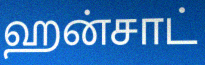
ஹன்சாட்